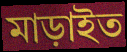
মাড়াইত